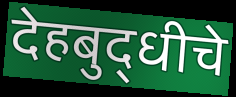
देहबुद्धीचे